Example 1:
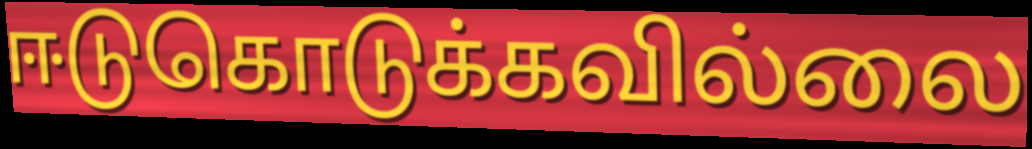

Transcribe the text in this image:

ஈடுகொடுக்கவில்லை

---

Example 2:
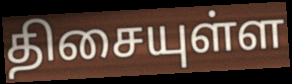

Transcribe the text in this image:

திசையுள்ள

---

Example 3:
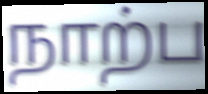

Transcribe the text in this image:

நாற்ப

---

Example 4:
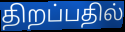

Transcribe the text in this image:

திறப்பதில்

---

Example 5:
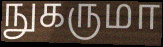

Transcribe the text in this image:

நுகருமா